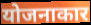
योजनाकार